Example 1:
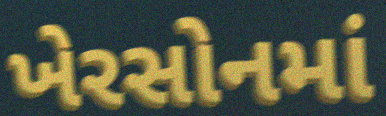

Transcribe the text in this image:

ખેરસોનમાં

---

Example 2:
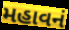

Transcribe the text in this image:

મહાવનં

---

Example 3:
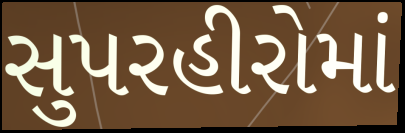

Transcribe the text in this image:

સુપરહીરોમાં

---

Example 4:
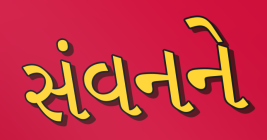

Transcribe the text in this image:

સંવનને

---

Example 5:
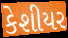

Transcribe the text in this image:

કેશીયર